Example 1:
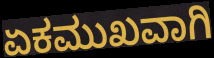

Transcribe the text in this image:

ಏಕಮುಖವಾಗಿ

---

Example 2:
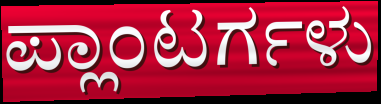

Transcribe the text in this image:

ಪ್ಲಾಂಟರ್ಗಳು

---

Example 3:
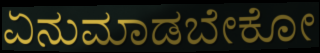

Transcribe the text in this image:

ಏನುಮಾಡಬೇಕೋ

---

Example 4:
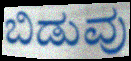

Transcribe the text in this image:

ಬಿಡುವು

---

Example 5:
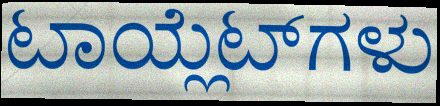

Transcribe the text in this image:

ಟಾಯ್ಲೆಟ್‌ಗಳು